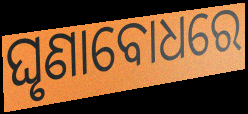
ଘୃଣାବୋଧରେ